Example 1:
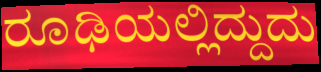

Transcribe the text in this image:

ರೂಢಿಯಲ್ಲಿದ್ದುದು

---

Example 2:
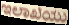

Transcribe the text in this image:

ಇಲಾಖೆಯು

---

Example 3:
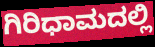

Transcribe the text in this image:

ಗಿರಿಧಾಮದಲ್ಲಿ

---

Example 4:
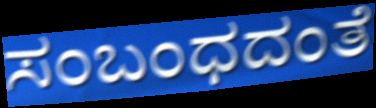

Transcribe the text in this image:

ಸಂಬಂಧದಂತೆ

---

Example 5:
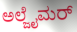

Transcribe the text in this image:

ಅಲ್ಜೈಮರ್